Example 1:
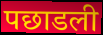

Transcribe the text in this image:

पछाडली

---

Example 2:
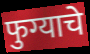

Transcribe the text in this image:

फुग्याचे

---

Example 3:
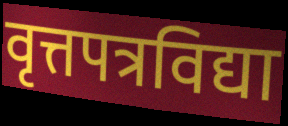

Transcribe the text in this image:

वृत्तपत्रविद्या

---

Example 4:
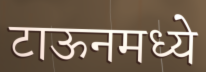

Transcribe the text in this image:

टाऊनमध्ये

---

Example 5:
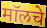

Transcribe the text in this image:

मॉलचे